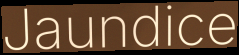
Jaundice